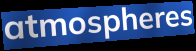
atmospheres